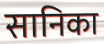
सानिका